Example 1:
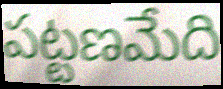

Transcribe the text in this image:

పట్టణమేది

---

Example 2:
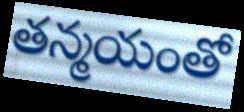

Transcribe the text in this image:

తన్మయంతో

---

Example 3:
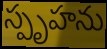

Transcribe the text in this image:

స్పృహను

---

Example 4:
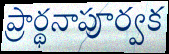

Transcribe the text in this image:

ప్రార్థనాపూర్వక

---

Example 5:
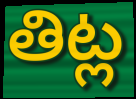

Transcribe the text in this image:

తిట్ల